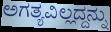
ಅಗತ್ಯವಿಲ್ಲದ್ದನ್ನು